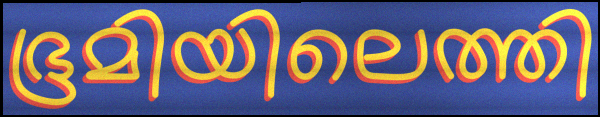
ഭൂമിയിലെത്തി